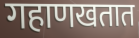
गहाणखतात